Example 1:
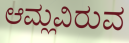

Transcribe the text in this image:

ಆಮ್ಲವಿರುವ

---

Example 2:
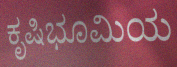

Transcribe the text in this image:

ಕೃಷಿಭೂಮಿಯ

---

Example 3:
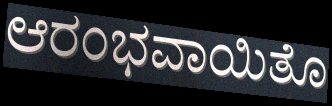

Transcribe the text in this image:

ಆರಂಭವಾಯಿತೊ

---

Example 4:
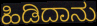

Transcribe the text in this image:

ಹಿಡಿದಾನು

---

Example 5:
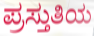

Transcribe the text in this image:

ಪ್ರಸ್ತುತಿಯ